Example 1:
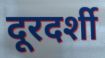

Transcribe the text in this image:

दूरदर्शी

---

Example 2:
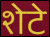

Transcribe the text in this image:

शेटे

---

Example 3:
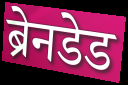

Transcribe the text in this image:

ब्रेनडेड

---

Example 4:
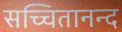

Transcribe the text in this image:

सच्चितानन्द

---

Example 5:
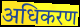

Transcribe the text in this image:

अधिकरण